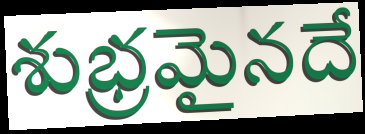
శుభ్రమైనదే